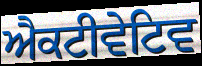
ਐਕਟੀਵੇਟਿਵ